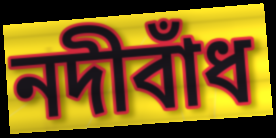
নদীবাঁধ